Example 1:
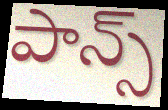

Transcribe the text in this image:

పాన్స్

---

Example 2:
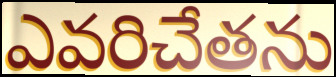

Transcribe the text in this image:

ఎవరిచేతను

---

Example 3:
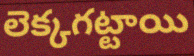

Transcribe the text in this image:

లెక్కగట్టాయి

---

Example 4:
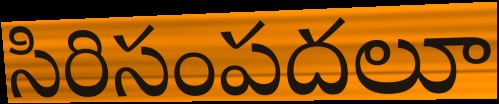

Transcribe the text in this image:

సిరిసంపదలూ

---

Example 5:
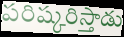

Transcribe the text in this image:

పరిష్కరిస్తాడు